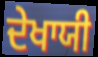
ਦੇਖਾਯੀ